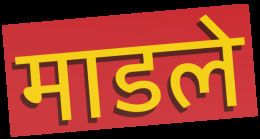
माडले